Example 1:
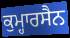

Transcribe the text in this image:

ਕੁਮ੍ਹਾਰਸੈਨ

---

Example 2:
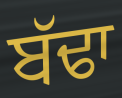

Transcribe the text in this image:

ਬੱਢਾ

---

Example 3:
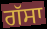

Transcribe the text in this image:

ਗੱਸਾ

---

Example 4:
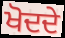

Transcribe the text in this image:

ਖੋਦਦੇ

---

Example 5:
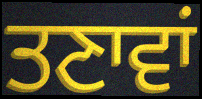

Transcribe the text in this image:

ਤਣਾਵਾਂ